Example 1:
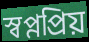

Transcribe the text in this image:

স্বপ্নপ্রিয়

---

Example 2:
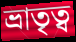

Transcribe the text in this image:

ভ্রাতৃত্ব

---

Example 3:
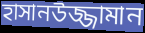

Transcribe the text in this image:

হাসানউজ্জামান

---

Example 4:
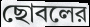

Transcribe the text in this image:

ছোবলের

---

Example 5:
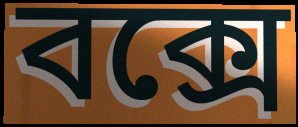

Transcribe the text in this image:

বক্সে